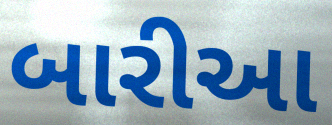
બારીઆ